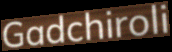
Gadchiroli